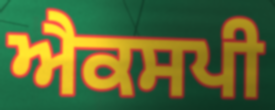
ਐਕਸਪੀ